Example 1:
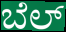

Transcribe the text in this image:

ಬೆಲ್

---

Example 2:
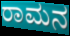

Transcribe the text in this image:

ರಾಮನ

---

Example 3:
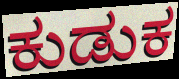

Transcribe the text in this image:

ಕುಡುಕ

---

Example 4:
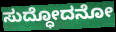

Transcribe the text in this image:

ಸುದ್ಧೋದನೋ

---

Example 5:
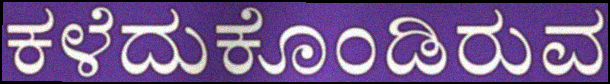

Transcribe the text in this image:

ಕಳೆದುಕೊಂಡಿರುವ